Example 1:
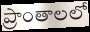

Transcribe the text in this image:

ప్రాంతాలలో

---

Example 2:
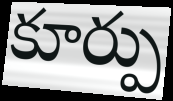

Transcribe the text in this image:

కూర్పు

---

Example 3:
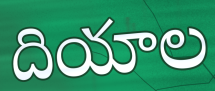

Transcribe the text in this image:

దియాల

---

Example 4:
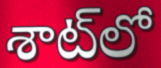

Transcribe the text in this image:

శాట్‌లో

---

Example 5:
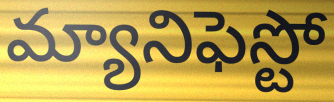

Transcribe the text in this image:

మ్యానిఫెస్టో